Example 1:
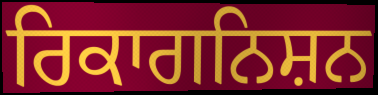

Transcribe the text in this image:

ਰਿਕਾਗਨਿਸ਼ਨ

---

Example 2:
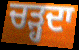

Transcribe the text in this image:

ਚੜ੍ਹਦਾ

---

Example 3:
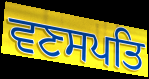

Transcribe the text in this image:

ਵਣਸਪਤਿ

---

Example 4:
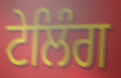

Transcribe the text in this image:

ਟੇਲਿੰਗ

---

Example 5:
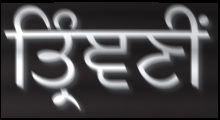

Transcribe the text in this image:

ਤ੍ਰਿੰਞਣੀਂ